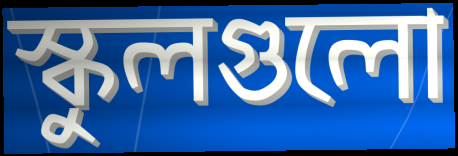
স্কুলগুলো